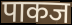
पाकज